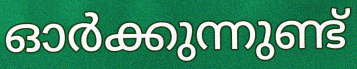
ഓർക്കുന്നുണ്ട്